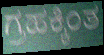
ಗ್ರಹಕ್ಕಿಂತ